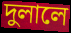
দুলালে